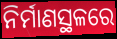
ନିର୍ମାଣସ୍ଥଳରେ